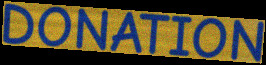
DONATION